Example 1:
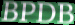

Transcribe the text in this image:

BPDB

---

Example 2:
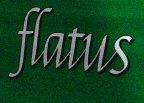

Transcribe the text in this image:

flatus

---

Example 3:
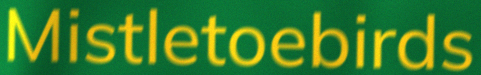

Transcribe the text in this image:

Mistletoebirds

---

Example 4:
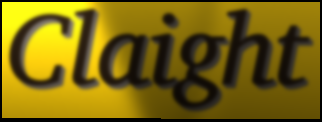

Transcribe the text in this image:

Claight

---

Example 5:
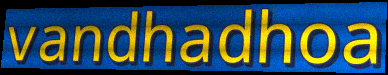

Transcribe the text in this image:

vandhadhoa